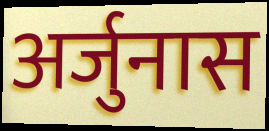
अर्जुनास